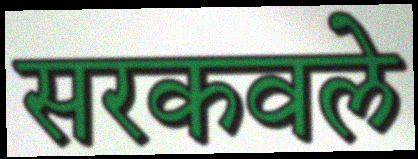
सरकवले